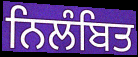
ਨਿਲੰਬਿਤ